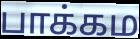
பாக்கம